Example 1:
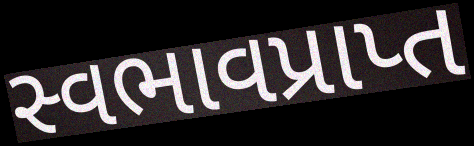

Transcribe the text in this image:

સ્વભાવપ્રાપ્ત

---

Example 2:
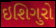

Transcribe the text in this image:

ઇશિગુરો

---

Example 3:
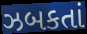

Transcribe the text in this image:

ઝબકતાં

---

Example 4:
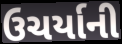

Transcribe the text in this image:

ઉચર્યાની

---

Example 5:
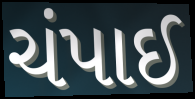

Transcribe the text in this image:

ચંપાઈ